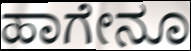
ಹಾಗೇನೂ